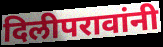
दिलीपरावांनी